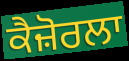
ਕੈਜ਼ੋਰਲਾ